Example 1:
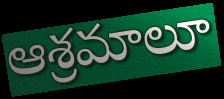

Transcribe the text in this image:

ఆశ్రమాలూ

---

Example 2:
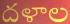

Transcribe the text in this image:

దళాల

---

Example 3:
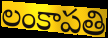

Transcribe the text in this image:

లంకాపతి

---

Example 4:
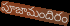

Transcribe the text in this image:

పూజామందిరం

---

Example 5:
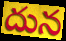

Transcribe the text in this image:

దున